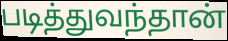
படித்துவந்தான்